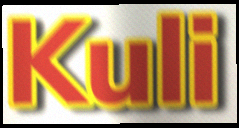
Kuli